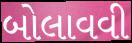
બોલાવવી